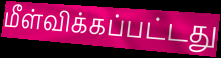
மீள்விக்கப்பட்டது